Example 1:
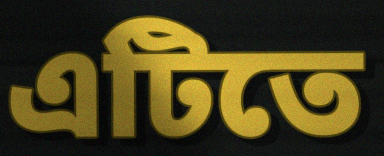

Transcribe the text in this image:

এটিতে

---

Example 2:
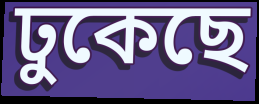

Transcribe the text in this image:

ঢুকেছে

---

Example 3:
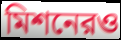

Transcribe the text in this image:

মিশনেরও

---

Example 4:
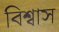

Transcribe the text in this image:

বিশ্বাস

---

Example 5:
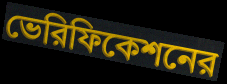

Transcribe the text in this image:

ভেরিফিকেশনের